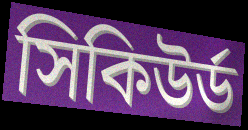
সিকিউর্ড